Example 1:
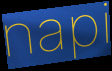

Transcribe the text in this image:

napi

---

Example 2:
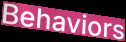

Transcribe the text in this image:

Behaviors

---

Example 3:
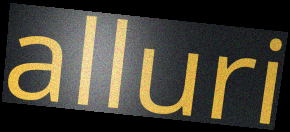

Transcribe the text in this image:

alluri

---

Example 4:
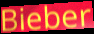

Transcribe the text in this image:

Bieber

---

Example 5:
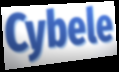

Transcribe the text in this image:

Cybele